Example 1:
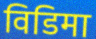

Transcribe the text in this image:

विडिमा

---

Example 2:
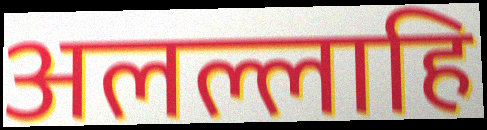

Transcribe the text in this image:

अलल्लाहि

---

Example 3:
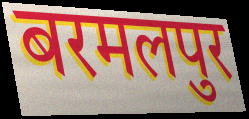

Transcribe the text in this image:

बरमलपुर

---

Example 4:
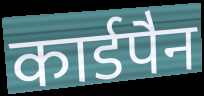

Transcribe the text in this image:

कार्डपैन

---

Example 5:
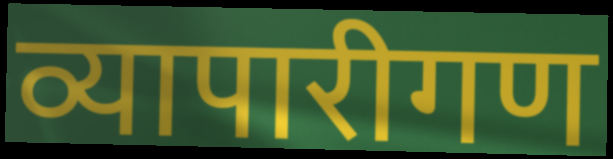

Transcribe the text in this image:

व्यापारीगण